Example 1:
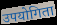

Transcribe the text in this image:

उपयोगिता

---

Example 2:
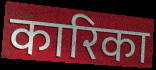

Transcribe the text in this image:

कारिका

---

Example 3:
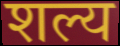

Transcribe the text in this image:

शल्‍य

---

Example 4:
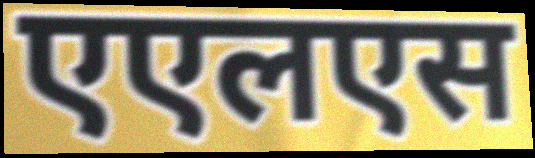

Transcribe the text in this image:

एएलएस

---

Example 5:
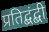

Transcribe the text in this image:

प्रतिद्बंद्बी